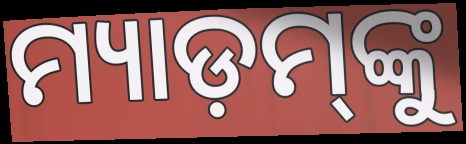
ମ୍ୟାଡ଼ମ୍‌ଙ୍କୁ